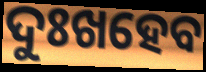
ଦୁଃଖହେବ